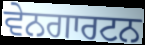
ਵੇਨਗਾਰਟਨ